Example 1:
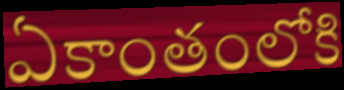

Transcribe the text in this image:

ఏకాంతంలోకి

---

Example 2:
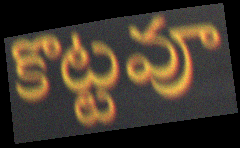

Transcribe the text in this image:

కొట్టవూ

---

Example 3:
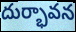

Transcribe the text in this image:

దుర్భావన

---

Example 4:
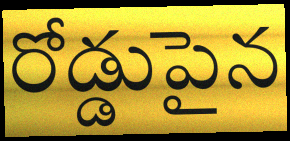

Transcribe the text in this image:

రోడ్డుపైన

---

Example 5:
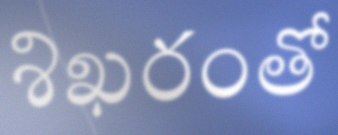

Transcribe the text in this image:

శిఖరంతో